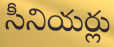
సీనియర్లు